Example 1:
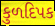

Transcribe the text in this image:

કુળદિપક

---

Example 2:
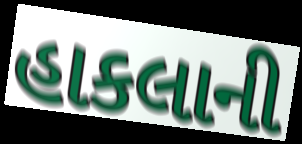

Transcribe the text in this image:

હાકલાની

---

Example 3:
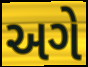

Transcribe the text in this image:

અગે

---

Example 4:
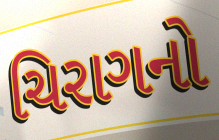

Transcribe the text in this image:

ચિરાગનો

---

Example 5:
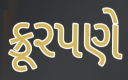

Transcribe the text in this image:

ક્રૂરપણે